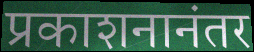
प्रकाशनानंतर